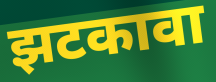
झटकावा